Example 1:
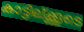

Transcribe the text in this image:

കാട്ടില്ക്കൂടെ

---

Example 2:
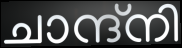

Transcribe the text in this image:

ചാന്ദ്നി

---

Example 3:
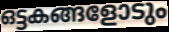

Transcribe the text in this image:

ഒട്ടകങ്ങളോടും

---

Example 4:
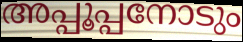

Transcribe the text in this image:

അപ്പൂപ്പനോടും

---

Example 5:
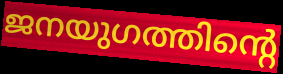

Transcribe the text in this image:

ജനയുഗത്തിന്റെ